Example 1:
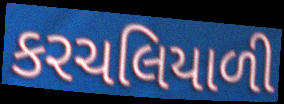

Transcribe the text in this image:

કરચલિયાળી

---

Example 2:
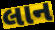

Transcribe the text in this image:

લાન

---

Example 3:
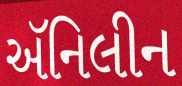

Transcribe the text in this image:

ઍનિલીન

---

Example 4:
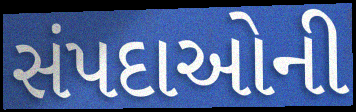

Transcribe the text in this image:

સંપદાઓની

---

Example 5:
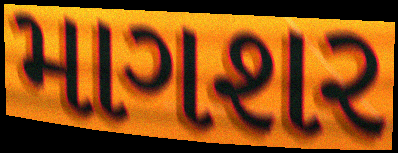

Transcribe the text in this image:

માગશર